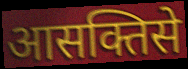
आसक्तिसे